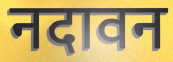
नदावन